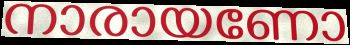
നാരായണോ